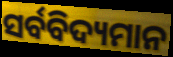
ସର୍ବବିଦ୍ୟମାନ